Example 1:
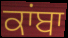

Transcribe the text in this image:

ਕਾਂਬਾ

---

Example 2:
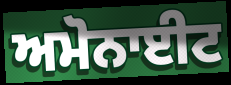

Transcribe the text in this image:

ਅਮੋਨਾਈਟ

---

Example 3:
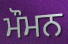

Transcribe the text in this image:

ਮੌਮਨ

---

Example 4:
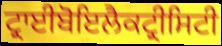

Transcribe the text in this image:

ਟ੍ਰਾਈਬੋਇਲੈਕਟ੍ਰੀਸਿਟੀ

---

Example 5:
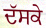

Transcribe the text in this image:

ਦੱਸਕੇ